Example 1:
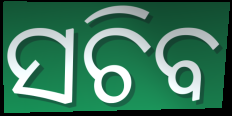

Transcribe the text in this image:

ସଚିବ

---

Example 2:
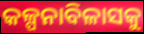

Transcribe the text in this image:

କଳ୍ପନାବିଳାସକୁ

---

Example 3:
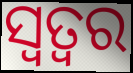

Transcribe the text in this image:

ସ୍ୱତ୍ୱର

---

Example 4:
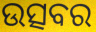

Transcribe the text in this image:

ଉତ୍ସବର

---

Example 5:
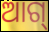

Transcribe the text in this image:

ଆଗ୍